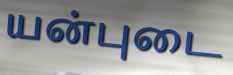
யன்புடை